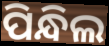
ପିନ୍ଧିଲ